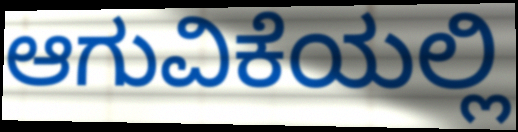
ಆಗುವಿಕೆಯಲ್ಲಿ